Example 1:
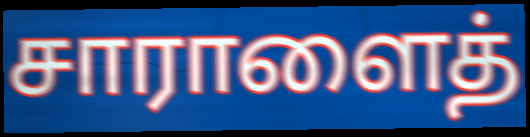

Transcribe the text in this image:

சாராளைத்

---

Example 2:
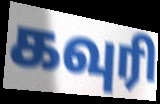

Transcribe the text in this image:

கவுரி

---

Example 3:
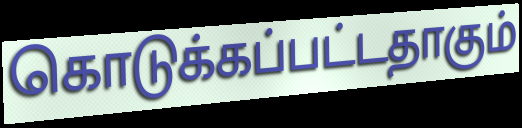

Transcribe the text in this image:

கொடுக்கப்பட்டதாகும்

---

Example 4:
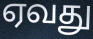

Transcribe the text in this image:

ஏவது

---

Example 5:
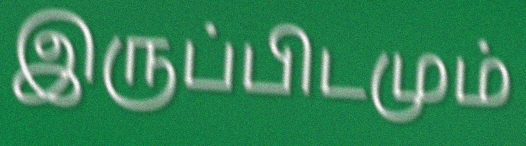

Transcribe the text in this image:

இருப்பிடமும்